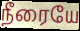
நீரையே